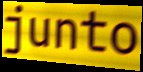
junto